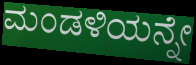
ಮಂಡಳಿಯನ್ನೇ